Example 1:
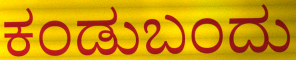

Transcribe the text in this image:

ಕಂಡುಬಂದು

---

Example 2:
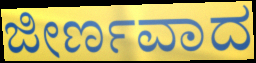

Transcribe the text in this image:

ಜೀರ್ಣವಾದ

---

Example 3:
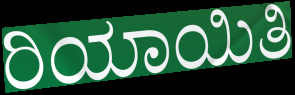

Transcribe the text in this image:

ರಿಯಾಯಿತಿ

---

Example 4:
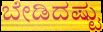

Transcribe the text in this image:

ಬೇಡಿದಷ್ಟು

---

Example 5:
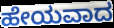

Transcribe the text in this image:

ಹೇಯವಾದ